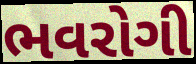
ભવરોગી